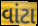
વાંટા